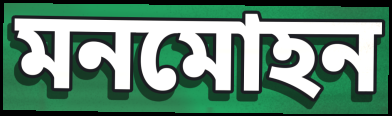
মনমোহন